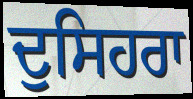
ਦੁਸਿਹਰਾ